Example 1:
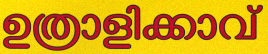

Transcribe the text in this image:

ഉത്രാളിക്കാവ്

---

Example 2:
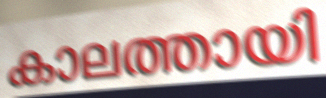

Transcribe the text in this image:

കാലത്തായി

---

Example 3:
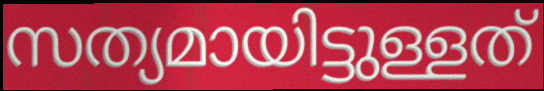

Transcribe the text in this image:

സത്യമായിട്ടുള്ളത്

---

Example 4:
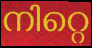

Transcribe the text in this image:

നിറ്റെ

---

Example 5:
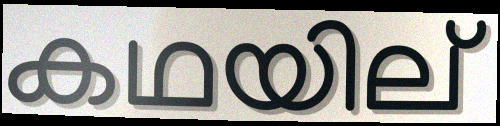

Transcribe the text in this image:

കഥയില്